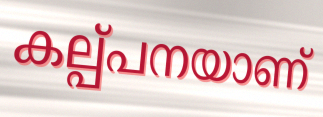
കല്പ്പനയാണ്